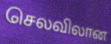
செலவிலான